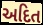
અદિત